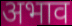
अभाव